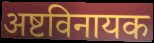
अष्टविनायक